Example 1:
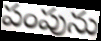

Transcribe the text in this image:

పంపును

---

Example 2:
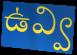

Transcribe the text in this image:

ఉవ్వి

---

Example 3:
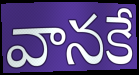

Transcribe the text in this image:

వానకే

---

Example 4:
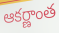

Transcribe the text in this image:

ఆకర్ణాంత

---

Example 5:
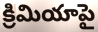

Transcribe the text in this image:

క్రిమియాపై